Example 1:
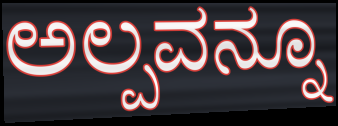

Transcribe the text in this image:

ಅಲ್ಪವನ್ನೂ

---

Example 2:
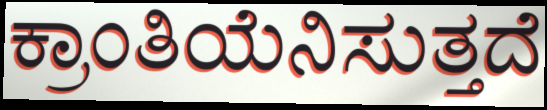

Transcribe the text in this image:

ಕ್ರಾಂತಿಯೆನಿಸುತ್ತದೆ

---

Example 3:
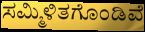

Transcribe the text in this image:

ಸಮ್ಮಿಳಿತಗೊಂಡಿವೆ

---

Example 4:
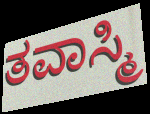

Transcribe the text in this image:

ತವಾಸ್ಮಿ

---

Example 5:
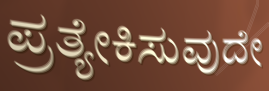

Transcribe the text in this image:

ಪ್ರತ್ಯೇಕಿಸುವುದೇ